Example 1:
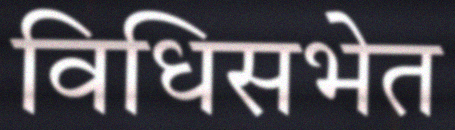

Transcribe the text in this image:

विधिसभेत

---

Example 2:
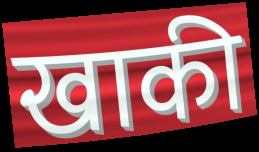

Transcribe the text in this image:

खाकी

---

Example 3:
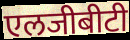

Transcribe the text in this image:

एलजीबीटी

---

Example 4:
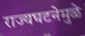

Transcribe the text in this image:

राज्यघटनेमुळे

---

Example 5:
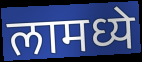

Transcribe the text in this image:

लामध्ये